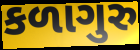
કળાગુરુ